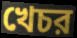
খেচর